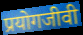
प्रयोगजीवी